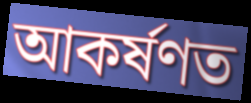
আকৰ্ষণত